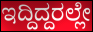
ಇದ್ದಿದ್ದರಲ್ಲೇ